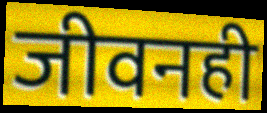
जीवनही